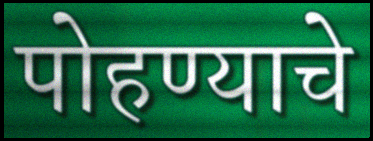
पोहण्याचे